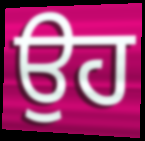
ਉਹ